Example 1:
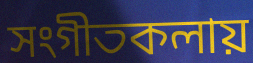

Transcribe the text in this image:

সংগীতকলায়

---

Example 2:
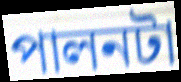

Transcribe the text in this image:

পালনটা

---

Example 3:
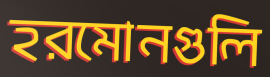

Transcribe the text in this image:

হরমোনগুলি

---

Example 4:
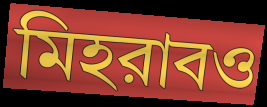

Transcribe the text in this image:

মিহরাবও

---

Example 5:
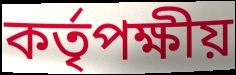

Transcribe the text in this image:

কর্তৃপক্ষীয়